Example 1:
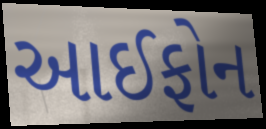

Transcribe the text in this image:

આઈફોન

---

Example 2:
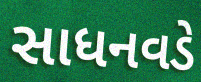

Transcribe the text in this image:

સાધનવડે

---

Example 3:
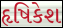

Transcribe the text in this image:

હૃષિકેશ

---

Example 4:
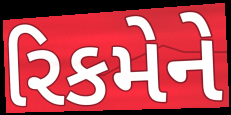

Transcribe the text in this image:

રિકમેને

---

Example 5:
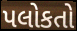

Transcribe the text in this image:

પલોકતો